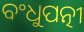
ବଂଧୁପତ୍ନୀ